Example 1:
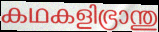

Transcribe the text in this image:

കഥകളിഭ്രാന്തു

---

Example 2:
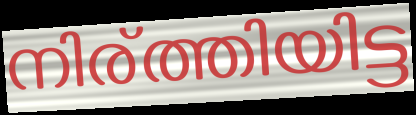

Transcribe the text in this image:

നിര്ത്തിയിട്ട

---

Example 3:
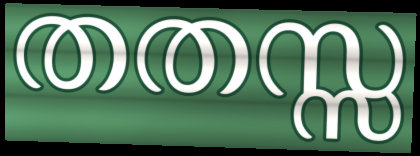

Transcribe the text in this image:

തതസ്സ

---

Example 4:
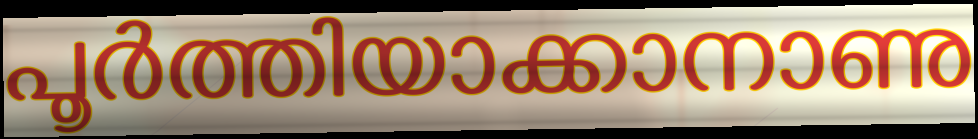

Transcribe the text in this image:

പൂർത്തിയാക്കാനാണു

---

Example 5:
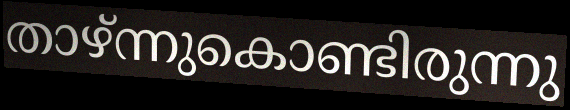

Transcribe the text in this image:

താഴ്ന്നുകൊണ്ടിരുന്നു